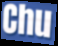
Chu